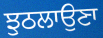
ਝੁਠਲਾਉਣਾ